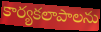
కార్యకలాపాలను